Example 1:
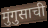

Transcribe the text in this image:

मुंगुसाची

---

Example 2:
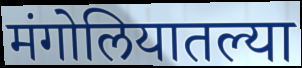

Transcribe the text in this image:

मंगोलियातल्या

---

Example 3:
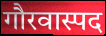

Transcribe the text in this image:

गौरवास्पद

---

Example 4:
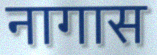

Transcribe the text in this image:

नागास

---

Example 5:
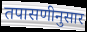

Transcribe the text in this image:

तपासणीनुसार